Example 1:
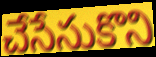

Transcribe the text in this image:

చేసేసుకొని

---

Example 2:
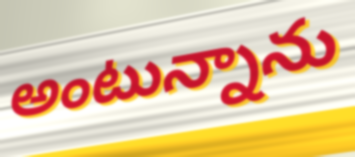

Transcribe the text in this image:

అంటున్నాను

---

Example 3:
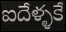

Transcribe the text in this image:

ఐదేళ్ళకే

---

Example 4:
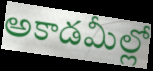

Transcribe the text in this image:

అకాడమీల్లో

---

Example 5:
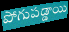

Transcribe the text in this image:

పోగుపడ్డాయి